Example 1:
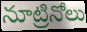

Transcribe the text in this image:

నూట్రినోలు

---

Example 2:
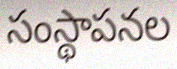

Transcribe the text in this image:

సంస్థాపనల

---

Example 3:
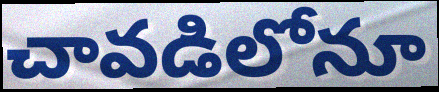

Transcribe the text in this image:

చావడిలోనూ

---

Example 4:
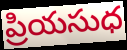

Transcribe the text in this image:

ప్రియసుధ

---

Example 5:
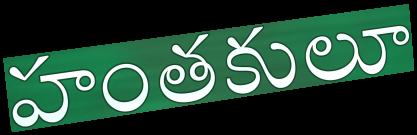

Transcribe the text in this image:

హంతకులూ